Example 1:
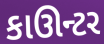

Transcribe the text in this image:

કાઊન્ટર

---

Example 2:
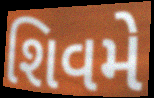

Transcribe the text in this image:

શિવમે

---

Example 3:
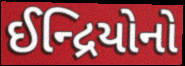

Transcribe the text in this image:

ઈન્દ્રિયોનો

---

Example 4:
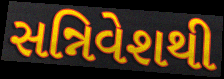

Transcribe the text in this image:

સન્નિવેશથી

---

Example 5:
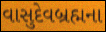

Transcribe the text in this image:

વાસુદેવબ્રહ્મના